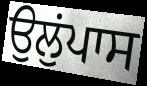
ਉਲੁਂਪਾਸ